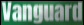
Vanguard